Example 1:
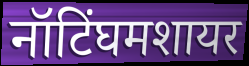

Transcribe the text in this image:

नॉटिंघमशायर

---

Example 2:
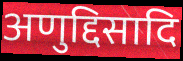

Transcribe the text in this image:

अणुद्दिसादि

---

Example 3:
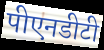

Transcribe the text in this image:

पीएनडीटी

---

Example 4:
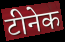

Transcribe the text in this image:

टीनेक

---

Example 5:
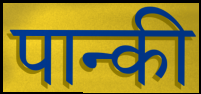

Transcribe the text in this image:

पान्की